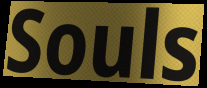
Souls